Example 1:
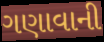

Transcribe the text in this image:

ગણાવાની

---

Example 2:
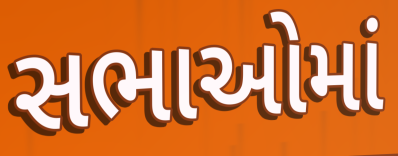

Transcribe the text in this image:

સભાઓમાં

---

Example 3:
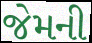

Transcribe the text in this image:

જેમની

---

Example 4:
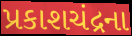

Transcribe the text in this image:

પ્રકાશચંદ્રના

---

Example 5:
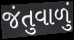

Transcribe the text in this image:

જંતુવાળું